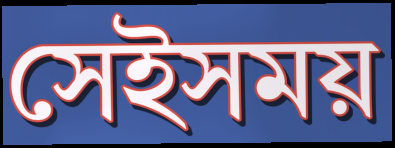
সেইসময়